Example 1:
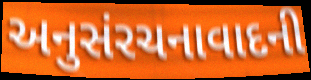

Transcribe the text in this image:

અનુસંરચનાવાદની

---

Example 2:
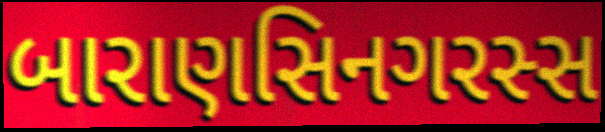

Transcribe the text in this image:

બારાણસિનગરસ્સ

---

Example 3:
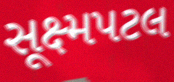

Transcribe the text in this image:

સૂક્ષ્મપટલ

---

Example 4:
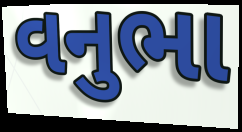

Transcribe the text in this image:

વનુભા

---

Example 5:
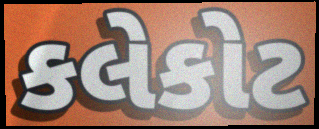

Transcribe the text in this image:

કલેકોટ